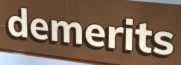
demerits